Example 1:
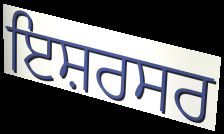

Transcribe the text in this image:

ਇਸ਼ਰਸਰ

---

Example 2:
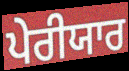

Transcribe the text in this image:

ਪੇਰੀਯਾਰ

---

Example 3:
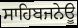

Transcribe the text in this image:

ਸਾਹਿਬਜਨੇਊ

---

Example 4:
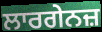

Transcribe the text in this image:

ਲਾਰਗੇਨਜ਼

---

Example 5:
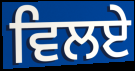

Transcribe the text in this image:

ਵਿਲਏ